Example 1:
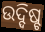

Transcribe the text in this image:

ଉଦ୍ଦିଷ୍ଚ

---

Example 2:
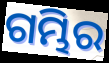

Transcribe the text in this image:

ଗମ୍ଭିର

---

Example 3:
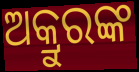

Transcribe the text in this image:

ଅକ୍ରୁରଙ୍କ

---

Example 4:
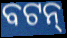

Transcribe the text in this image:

ବଟନ୍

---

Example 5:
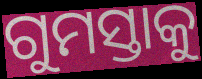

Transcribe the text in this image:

ଗୁମସ୍ତାକୁ